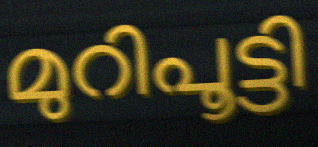
മുറിപൂട്ടി